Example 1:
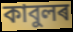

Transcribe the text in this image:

কাবুলৰ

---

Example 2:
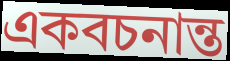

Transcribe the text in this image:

একবচনান্ত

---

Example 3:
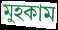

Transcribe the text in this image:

মুহকাম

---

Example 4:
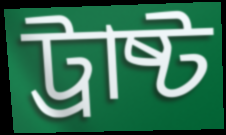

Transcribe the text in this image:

ট্ৰাষ্ট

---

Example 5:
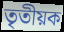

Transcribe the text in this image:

তৃতীয়ক